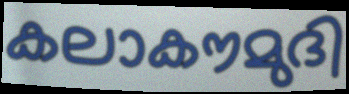
കലാകൗമുദി